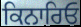
ਕਿਨਾਰਿਓ